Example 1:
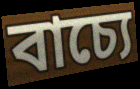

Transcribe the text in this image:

বাচ্যে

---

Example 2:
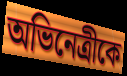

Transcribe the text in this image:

অভিনেত্রীকে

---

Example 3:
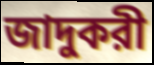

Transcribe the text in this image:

জাদুকরী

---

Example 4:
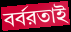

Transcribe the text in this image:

বর্বরতাই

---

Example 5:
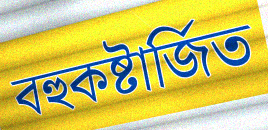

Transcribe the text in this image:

বহুকষ্টার্জিত